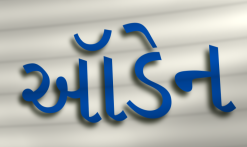
ઑડેન